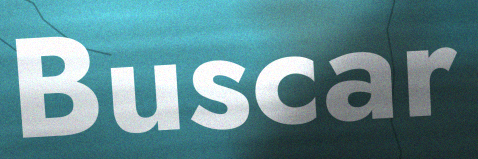
Buscar